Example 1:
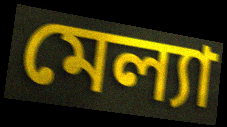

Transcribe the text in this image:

মেল্যা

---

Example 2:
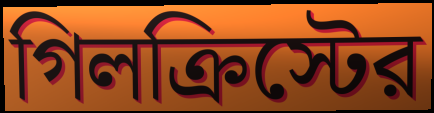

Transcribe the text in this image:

গিলক্রিস্টের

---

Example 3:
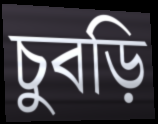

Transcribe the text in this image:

চুবড়ি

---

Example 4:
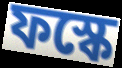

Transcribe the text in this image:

ফস্কে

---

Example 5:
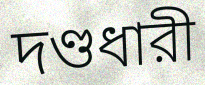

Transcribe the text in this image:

দণ্ডধারী